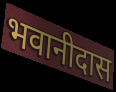
भवानीदास